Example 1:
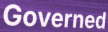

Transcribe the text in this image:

Governed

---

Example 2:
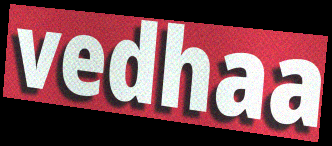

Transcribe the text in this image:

vedhaa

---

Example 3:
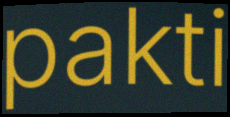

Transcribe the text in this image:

pakti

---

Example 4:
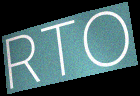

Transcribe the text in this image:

RTO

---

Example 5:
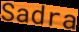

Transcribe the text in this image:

Sadra